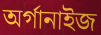
অর্গানাইজ